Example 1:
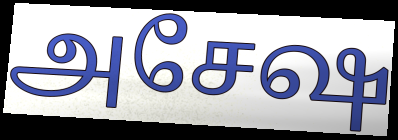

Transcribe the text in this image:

அசேஷ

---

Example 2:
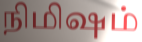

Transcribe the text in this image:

நிமிஷம்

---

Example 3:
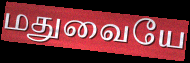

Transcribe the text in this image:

மதுவையே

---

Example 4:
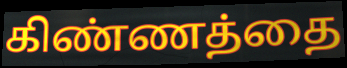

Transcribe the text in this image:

கிண்ணத்தை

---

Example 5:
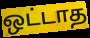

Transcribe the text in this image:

ஒட்டாத